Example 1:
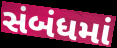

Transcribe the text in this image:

સંબંધમાં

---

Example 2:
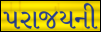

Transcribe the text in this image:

પરાજયની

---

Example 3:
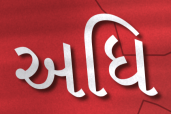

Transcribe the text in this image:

અધિ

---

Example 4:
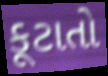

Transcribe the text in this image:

કૂટાતો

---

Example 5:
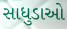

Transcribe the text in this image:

સાધુડાઓ